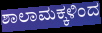
ಶಾಲಾಮಕ್ಕಳಿಂದ